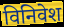
विनिवेश